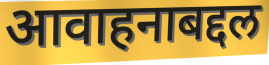
आवाहनाबद्दल